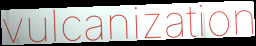
vulcanization